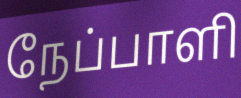
நேப்பாளி